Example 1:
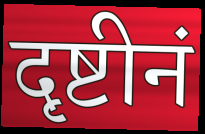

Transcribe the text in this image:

दृष्टीनं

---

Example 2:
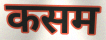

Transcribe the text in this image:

कसम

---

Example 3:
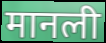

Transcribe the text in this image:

मानली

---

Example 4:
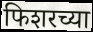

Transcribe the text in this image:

फिशरच्या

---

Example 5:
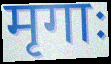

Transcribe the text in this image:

मृगाः